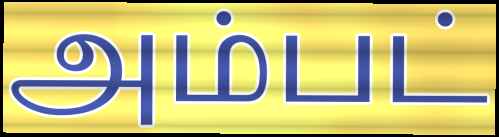
அம்பட்